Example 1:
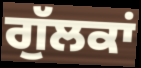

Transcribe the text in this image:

ਗੁੱਲਕਾਂ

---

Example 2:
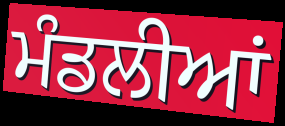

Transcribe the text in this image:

ਮੰਡਲੀਆਂ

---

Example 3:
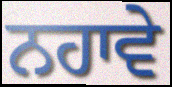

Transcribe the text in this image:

ਨਹਾਵੇ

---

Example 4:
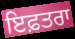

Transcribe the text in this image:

ਇਫ਼ਤਰਾ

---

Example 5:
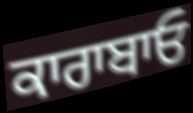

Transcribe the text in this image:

ਕਾਰਾਬਾਓ